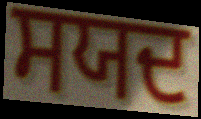
ਸਯਦ